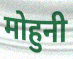
मोहुनी